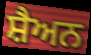
ਸ਼ੈਅਨ